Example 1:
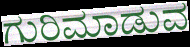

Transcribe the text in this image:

ಗುರಿಮಾಡುವ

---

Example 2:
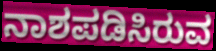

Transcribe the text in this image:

ನಾಶಪಡಿಸಿರುವ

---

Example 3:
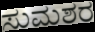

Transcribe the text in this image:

ಸುಮಶರ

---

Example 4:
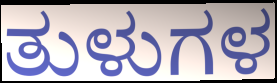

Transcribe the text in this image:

ತುಳುಗಳ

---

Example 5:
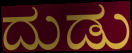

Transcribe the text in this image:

ದುಡು